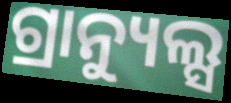
ଗ୍ରାନ୍ୟୁଲ୍ସ